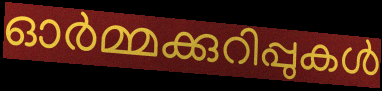
ഓർമ്മക്കുറിപ്പുകൾ